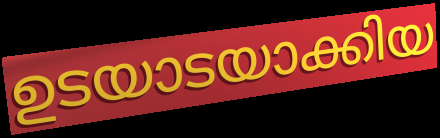
ഉടയാടയാക്കിയ